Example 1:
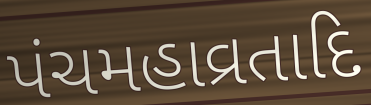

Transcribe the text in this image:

પંચમહાવ્રતાદિ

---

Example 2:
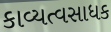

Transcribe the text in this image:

કાવ્યત્વસાધક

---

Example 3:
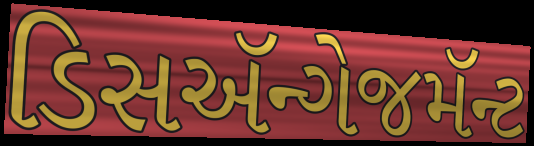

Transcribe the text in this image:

ડિસઍન્ગેજમૅન્ટ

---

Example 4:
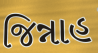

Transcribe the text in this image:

જિન્નાહ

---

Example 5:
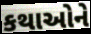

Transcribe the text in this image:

કથાઓને